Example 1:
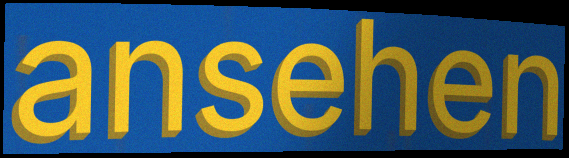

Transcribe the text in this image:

ansehen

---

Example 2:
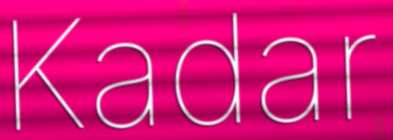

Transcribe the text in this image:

Kadar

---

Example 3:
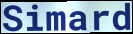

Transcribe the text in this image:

Simard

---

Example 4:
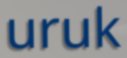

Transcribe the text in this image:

uruk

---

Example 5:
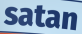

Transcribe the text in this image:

satan